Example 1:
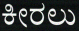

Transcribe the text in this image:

ಕೀರಲು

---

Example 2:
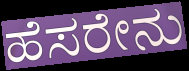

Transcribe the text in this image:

ಹೆಸರೇನು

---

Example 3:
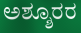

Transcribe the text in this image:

ಅಶ್ಶೂರರ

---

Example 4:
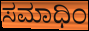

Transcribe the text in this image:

ಸಮಾಧಿಂ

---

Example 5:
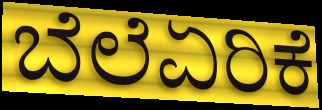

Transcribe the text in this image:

ಬೆಲೆಏರಿಕೆ